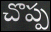
చొప్ప